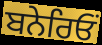
ਬਨੇਰਿਓਂ